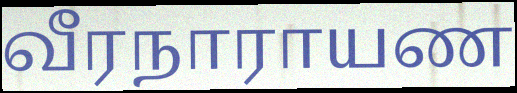
வீரநாராயண